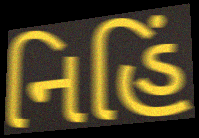
નિહિં